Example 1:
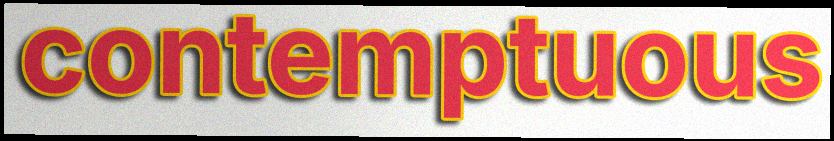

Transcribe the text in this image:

contemptuous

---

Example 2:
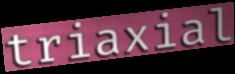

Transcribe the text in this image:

triaxial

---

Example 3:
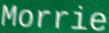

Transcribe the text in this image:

Morrie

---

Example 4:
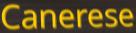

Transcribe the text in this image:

Canerese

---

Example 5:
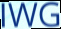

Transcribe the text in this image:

IWG